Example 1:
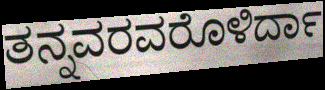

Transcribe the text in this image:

ತನ್ನವರವರೊಳಿರ್ದಾ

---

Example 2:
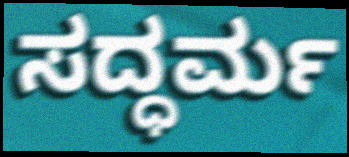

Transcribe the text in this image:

ಸದ್ಧರ್ಮ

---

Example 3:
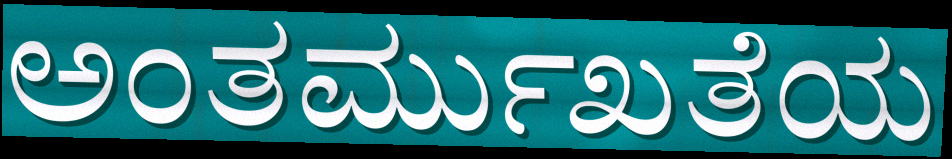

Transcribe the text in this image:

ಅಂತರ್ಮುಖತೆಯ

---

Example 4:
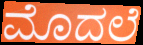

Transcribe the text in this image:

ಮೊದಲೆ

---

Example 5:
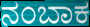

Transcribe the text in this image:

ನಂಬಾಕ